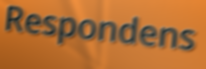
Respondens